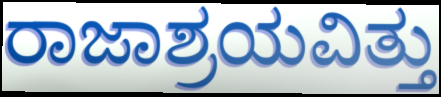
ರಾಜಾಶ್ರಯವಿತ್ತು